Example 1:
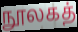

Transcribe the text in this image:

நூலகத்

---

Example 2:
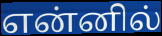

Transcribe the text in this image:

என்னில்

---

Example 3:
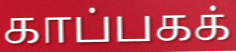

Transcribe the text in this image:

காப்பகக்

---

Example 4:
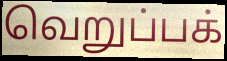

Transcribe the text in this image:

வெறுப்பக்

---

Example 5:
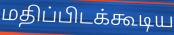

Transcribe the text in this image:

மதிப்பிடக்கூடிய